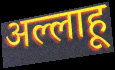
अल्लाहू